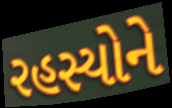
રહસ્યોને